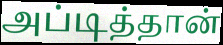
அப்டித்தான்